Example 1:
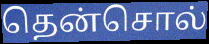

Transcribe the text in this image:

தென்சொல்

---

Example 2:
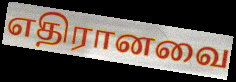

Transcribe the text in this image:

எதிரானவை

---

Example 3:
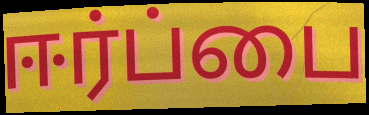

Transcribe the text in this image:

ஈர்ப்பை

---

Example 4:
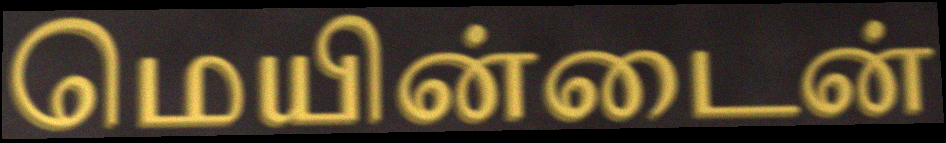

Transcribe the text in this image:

மெயின்டைன்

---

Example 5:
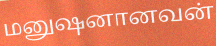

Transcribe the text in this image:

மனுஷனானவன்